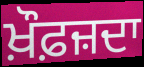
ਖ਼ੌਫ਼ਜ਼ਦਾ